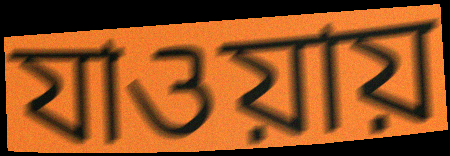
যাওয়ায়